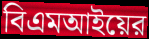
বিএমআইয়ের